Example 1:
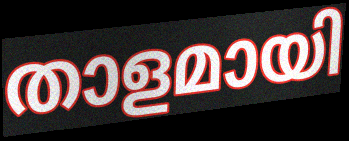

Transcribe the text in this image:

താളമായി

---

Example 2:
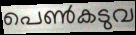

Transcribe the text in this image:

പെൺകടുവ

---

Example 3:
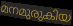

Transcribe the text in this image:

മനമുരുകിയ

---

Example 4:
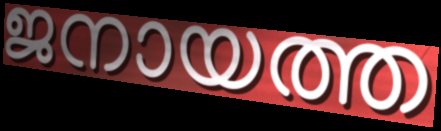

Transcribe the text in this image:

ജനായത്ത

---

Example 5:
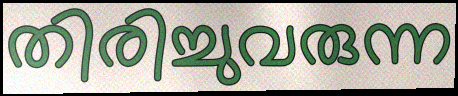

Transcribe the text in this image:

തിരിച്ചുവരുന്ന